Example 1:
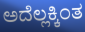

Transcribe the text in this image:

ಅದೆಲ್ಲಕ್ಕಿಂತ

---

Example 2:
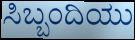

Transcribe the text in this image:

ಸಿಬ್ಬಂದಿಯು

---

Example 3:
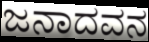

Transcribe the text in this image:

ಜನಾದವನ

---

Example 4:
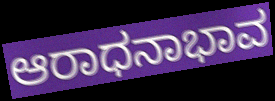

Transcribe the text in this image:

ಆರಾಧನಾಭಾವ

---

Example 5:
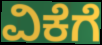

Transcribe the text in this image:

ವಿಕೆಗೆ